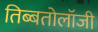
तिब्बतोलॉजी